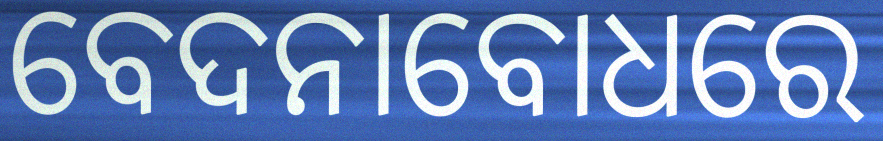
ବେଦନାବୋଧରେ